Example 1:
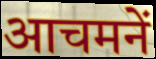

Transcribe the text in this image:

आचमनें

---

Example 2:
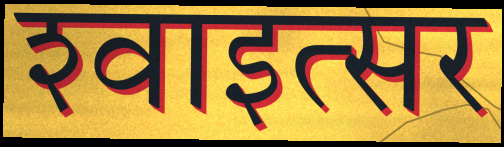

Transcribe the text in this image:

श्वाइत्सर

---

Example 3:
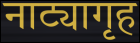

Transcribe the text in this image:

नाट्यागृह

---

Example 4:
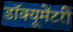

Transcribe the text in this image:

डॉक्यूमेंटरी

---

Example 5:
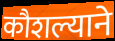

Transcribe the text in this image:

कौशल्याने